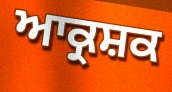
ਆਕ੍ਰਸ਼ਕ